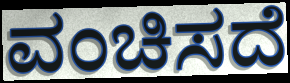
ವಂಚಿಸದೆ